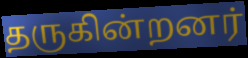
தருகின்றனர்